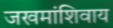
जखमांशिवाय